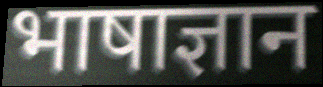
भाषाज्ञान